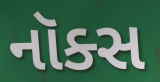
નૉક્સ